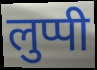
लुप्पी